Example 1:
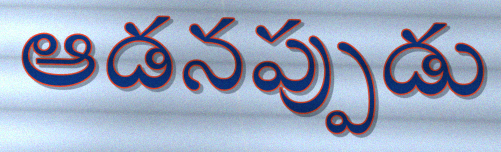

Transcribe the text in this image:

ఆడనప్పుడు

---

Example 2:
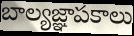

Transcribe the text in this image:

బాల్యజ్ఞాపకాలు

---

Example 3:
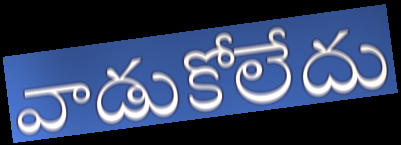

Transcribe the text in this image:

వాడుకోలేదు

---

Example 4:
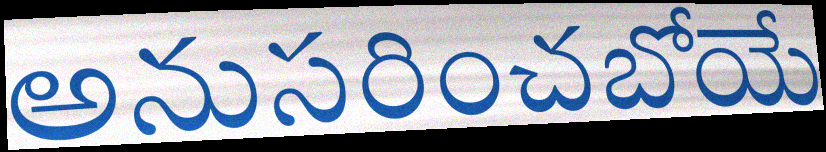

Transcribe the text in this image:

అనుసరించబోయే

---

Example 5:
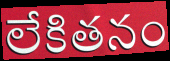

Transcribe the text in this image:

లేకితనం